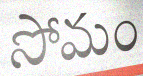
సోమం